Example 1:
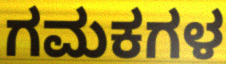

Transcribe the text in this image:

ಗಮಕಗಳ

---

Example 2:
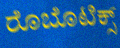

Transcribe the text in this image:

ರೊಬೊಟಿಕ್ಸ್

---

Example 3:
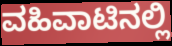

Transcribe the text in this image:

ವಹಿವಾಟಿನಲ್ಲಿ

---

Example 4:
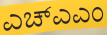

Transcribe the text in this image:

ಎಚ್ಎಎಂ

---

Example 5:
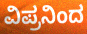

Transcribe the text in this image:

ವಿಪ್ರನಿಂದ